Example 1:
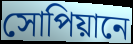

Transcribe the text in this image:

সোপিয়ানে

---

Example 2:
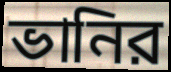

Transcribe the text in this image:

ভানির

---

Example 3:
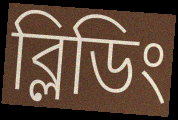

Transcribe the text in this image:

ব্লিডিং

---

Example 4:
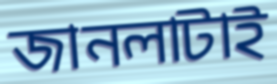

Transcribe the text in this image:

জানলাটাই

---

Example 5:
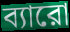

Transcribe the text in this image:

ব্যারো